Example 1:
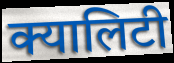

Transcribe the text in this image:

क्यालिटी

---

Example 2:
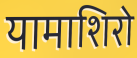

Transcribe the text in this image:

यामाशिरो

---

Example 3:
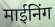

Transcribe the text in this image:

माईनिंग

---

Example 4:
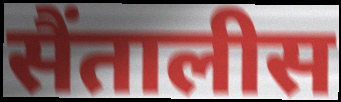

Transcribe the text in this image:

सैंतालीस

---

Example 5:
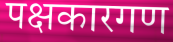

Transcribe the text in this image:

पक्षकारगण